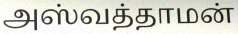
அஸ்வத்தாமன்